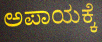
ಅಪಾಯಕ್ಕೆ